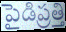
పైడిప్రత్తి